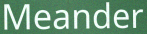
Meander